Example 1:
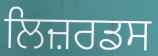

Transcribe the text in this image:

ਲਿਜ਼ਰਡਸ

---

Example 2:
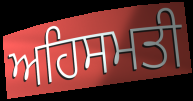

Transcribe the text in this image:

ਅਹਿਸਮਤੀ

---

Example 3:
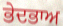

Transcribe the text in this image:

ਭੇਦਭਾਅ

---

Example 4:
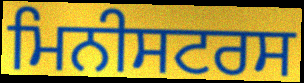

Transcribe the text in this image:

ਮਿਨੀਸਟਰਸ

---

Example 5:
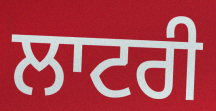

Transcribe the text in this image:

ਲਾਟਰੀ